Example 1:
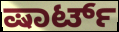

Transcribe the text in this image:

ಷಾರ್ಟ್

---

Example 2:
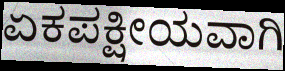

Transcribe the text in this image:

ಏಕಪಕ್ಷೀಯವಾಗಿ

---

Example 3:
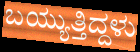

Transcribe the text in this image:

ಬಯ್ಯುತ್ತಿದ್ದಳು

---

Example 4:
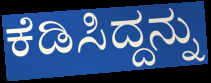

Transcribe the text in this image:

ಕೆಡಿಸಿದ್ದನ್ನು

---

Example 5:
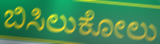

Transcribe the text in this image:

ಬಿಸಿಲುಕೋಲು